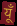
यूँ